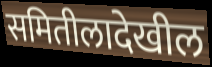
समितीलादेखील